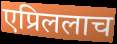
एप्रिललाच